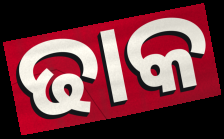
ଢାକ